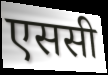
एससी